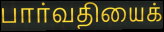
பார்வதியைக்